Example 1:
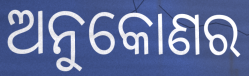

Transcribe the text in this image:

ଅନୁକୋଣର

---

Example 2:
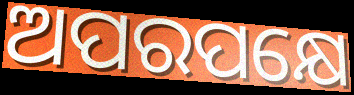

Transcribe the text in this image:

ଅପରପକ୍ଷେ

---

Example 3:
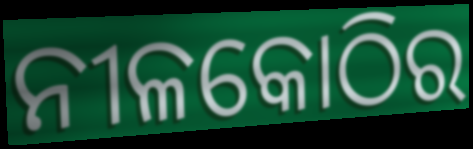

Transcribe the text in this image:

ନୀଳକୋଠିର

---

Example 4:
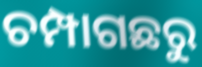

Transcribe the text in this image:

ଚମ୍ପାଗଛରୁ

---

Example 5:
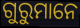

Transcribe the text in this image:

ଗୁରୁମାନେ